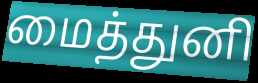
மைத்துனி